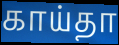
காய்தா